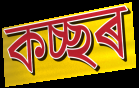
কচ্ছৰ